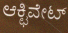
ಆಕ್ಟಿವೇಟ್